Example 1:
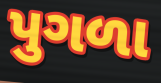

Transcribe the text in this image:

પુગળા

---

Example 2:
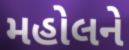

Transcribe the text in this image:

મહોલને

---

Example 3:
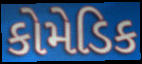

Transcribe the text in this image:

કોમેડિક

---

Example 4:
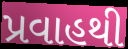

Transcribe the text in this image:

પ્રવાહથી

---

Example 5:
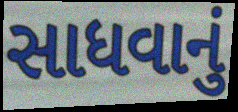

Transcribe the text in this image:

સાધવાનું